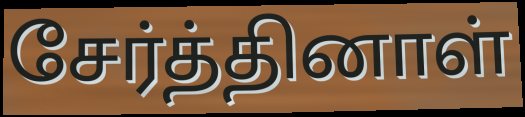
சேர்த்தினாள்